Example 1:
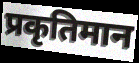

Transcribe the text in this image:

प्रकृतिमान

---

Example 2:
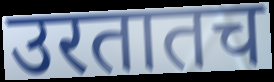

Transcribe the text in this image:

उरतातच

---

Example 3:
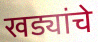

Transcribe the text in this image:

खड्यांचे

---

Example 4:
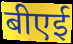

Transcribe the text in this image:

बीएई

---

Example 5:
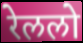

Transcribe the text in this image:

रेललो